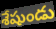
శేషుండు